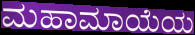
ಮಹಾಮಾಯೆಯ